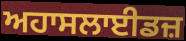
ਅਹਾਸਲਾਈਡਜ਼